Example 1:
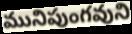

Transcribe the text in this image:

మునిపుంగవుని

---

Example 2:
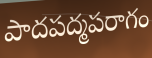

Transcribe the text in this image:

పాదపద్మపరాగం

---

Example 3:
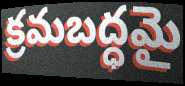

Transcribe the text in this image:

క్రమబద్ధమై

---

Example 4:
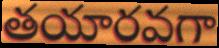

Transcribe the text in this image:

తయారవగా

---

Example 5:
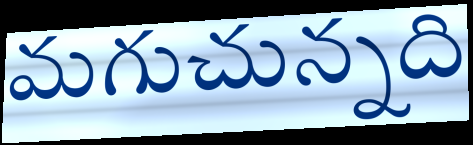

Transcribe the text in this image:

మగుచున్నది